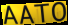
AATO